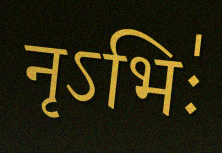
नृऽभिः॑